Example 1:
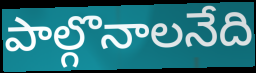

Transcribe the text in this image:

పాల్గొనాలనేది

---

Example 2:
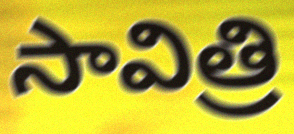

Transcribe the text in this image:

సావిత్రి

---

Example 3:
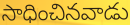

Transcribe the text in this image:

సాధించినవాడు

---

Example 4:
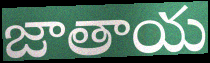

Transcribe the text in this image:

జాతాయ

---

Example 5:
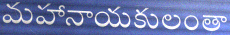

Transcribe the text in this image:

మహానాయకులంతా